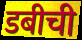
डबीची